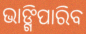
ଭାଙ୍ଗିପାରିବ